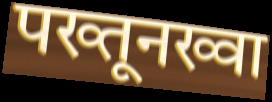
पख्तूनख्वा